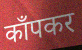
काँपकर